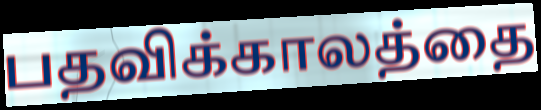
பதவிக்காலத்தை